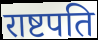
राष्टपति